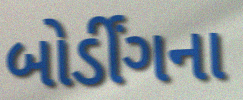
બોર્ડીંગના